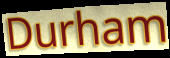
Durham